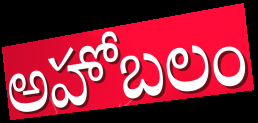
అహోబలం